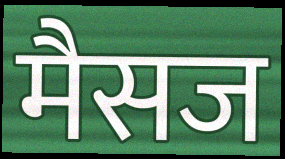
मैसज